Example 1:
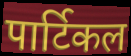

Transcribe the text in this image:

पार्टिकल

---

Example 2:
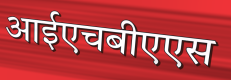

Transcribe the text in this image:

आईएचबीएएस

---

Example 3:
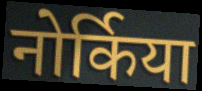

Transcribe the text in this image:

नोर्किया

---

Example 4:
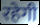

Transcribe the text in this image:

रहेगी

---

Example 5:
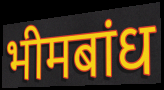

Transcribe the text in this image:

भीमबांध